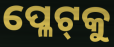
ପ୍ଳେଟ୍‌କୁ